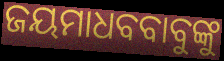
ଜୟମାଧବବାବୁଙ୍କୁ